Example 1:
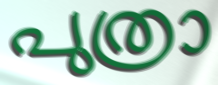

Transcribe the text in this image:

പുത്രാ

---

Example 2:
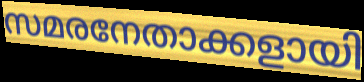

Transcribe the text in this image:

സമരനേതാക്കളായി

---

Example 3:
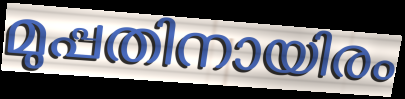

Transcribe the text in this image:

മുപ്പതിനായിരം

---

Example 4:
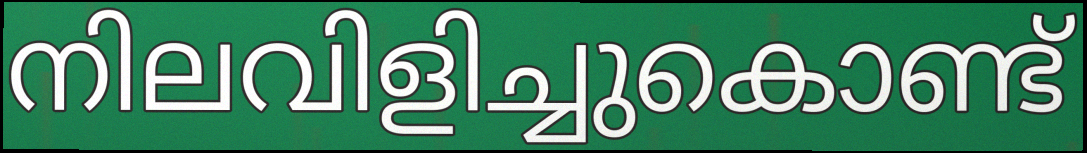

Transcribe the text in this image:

നിലവിളിച്ചുകൊണ്ട്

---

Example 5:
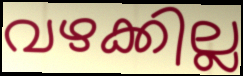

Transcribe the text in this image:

വഴക്കില്ല